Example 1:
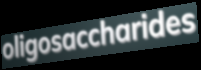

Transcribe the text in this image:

oligosaccharides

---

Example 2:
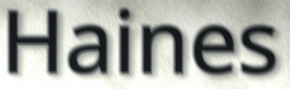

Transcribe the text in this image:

Haines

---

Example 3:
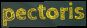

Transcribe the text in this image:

pectoris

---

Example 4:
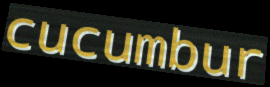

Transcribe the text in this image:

cucumbur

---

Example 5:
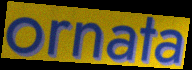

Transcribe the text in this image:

ornata